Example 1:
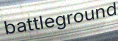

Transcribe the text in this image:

battleground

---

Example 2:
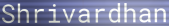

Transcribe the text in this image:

Shrivardhan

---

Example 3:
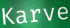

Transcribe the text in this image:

Karve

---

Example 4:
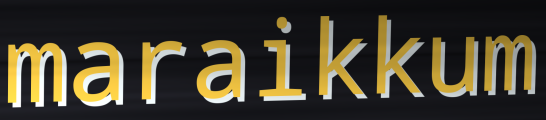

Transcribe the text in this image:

maraikkum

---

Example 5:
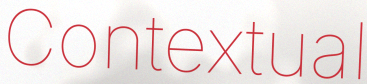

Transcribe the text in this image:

Contextual